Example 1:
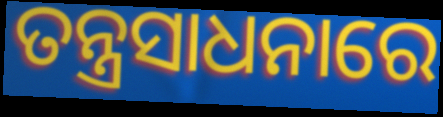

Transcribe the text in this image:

ତନ୍ତ୍ରସାଧନାରେ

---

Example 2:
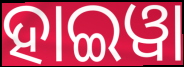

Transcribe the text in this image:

ହାଇୱା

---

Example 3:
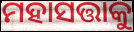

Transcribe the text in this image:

ମହାସତ୍ତାକୁ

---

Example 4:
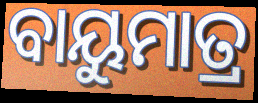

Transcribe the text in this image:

ବାୟୁମାତ୍ର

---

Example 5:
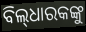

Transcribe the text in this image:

ବିଲ୍‌ଧାରକଙ୍କୁ